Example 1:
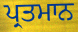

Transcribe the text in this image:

ਪ੍ਰਤਮਾਨ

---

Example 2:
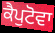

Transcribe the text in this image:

ਕੈਪੁਟੋਵਾ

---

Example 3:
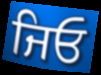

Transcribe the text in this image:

ਜਿਓ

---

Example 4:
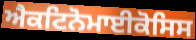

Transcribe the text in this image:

ਐਕਟਿਨੋਮਾਈਕੋਸਿਸ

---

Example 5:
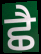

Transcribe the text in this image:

ਛੈ